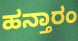
ಹನ್ತಾರಂ